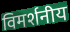
विमर्शनीय